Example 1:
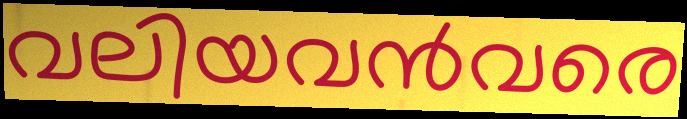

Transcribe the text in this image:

വലിയവൻവരെ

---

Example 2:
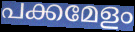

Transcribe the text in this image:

പക്കമേളം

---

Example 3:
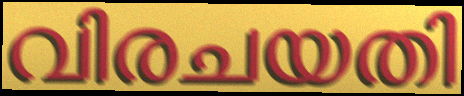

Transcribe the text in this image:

വിരചയതി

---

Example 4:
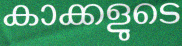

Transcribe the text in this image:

കാക്കളുടെ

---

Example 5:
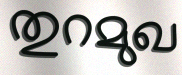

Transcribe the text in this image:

തുറമുഖ